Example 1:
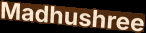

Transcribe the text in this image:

Madhushree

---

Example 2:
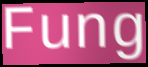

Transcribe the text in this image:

Fung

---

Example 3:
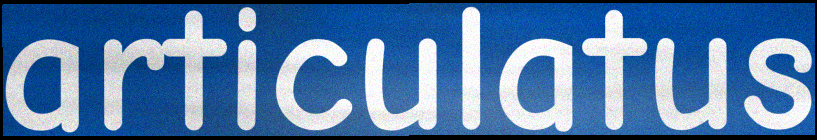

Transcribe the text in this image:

articulatus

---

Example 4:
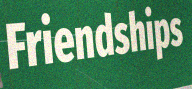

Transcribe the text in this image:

Friendships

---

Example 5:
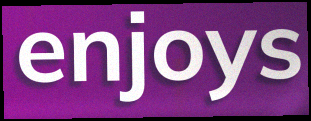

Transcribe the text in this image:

enjoys